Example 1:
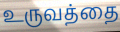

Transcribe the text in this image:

உருவத்தை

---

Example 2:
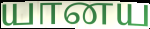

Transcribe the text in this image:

யானய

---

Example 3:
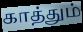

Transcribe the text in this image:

காத்தும்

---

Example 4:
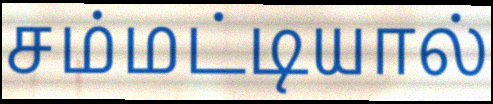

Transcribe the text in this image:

சம்மட்டியால்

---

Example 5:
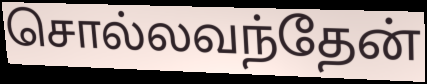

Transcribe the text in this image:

சொல்லவந்தேன்